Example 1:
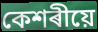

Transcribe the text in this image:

কেশৰীয়ে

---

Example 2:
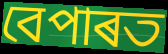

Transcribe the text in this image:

বেপাৰত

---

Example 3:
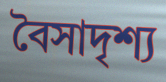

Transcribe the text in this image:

বৈসাদৃশ্য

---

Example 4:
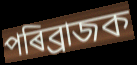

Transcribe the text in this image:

পৰিব্ৰাজক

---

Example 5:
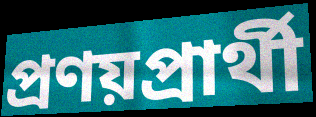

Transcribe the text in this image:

প্ৰণয়প্ৰাৰ্থী